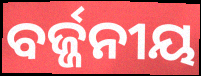
ବର୍ଜ୍ଜନୀୟ